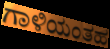
ಗಾಳಿಯಂತಹ